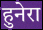
हुनेरा